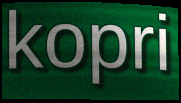
kopri